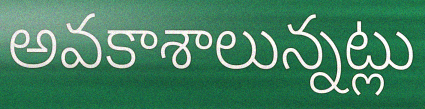
అవకాశాలున్నట్లు